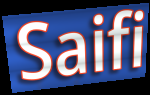
Saifi